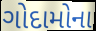
ગોદામોના